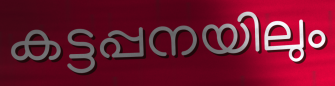
കട്ടപ്പനയിലും